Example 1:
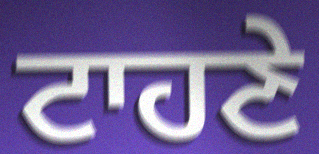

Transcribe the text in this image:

ਟਾਹਣੇ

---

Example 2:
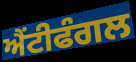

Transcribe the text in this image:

ਐਂਟੀਫੰਗਲ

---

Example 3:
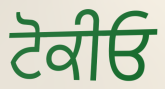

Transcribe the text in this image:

ਟੋਕੀਓ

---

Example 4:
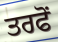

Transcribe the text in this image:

ਤਰਫੋਂ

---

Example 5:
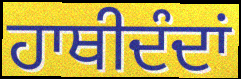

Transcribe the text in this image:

ਹਾਥੀਦੰਦਾਂ